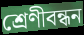
শ্রেণীবন্ধন